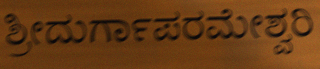
ಶ್ರೀದುರ್ಗಾಪರಮೇಶ್ವರಿ